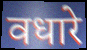
वधारे